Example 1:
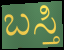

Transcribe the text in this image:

ಬಸ್ತಿ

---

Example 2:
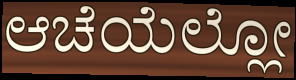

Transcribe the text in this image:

ಆಚೆಯೆಲ್ಲೋ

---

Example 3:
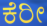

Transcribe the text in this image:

ಕೆರೀ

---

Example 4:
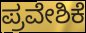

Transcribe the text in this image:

ಪ್ರವೇಶಿಕೆ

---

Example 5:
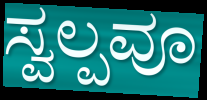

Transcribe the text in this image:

ಸ್ವಲ್ಪವೂ